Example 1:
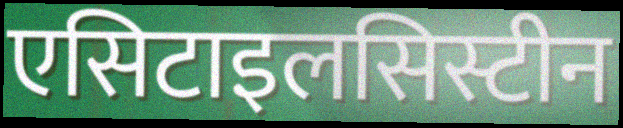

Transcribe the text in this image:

एसिटाइलसिस्टीन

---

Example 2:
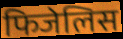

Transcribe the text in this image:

फिजेलिस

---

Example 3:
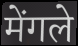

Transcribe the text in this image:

मेंगले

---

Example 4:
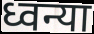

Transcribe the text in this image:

ध्वन्या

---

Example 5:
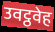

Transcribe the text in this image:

उवट्ठवेह